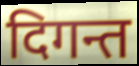
दिगन्त